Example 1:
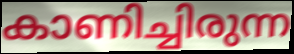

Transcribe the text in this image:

കാണിച്ചിരുന്ന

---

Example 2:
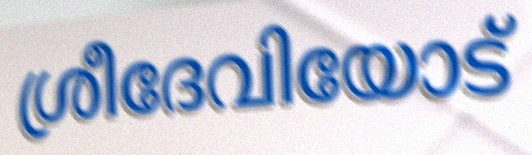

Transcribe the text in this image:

ശ്രീദേവിയോട്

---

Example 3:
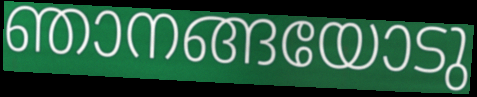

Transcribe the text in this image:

ഞാനങ്ങയോടു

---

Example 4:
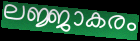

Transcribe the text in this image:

ലജ്ജാകരം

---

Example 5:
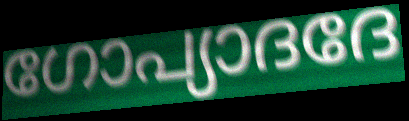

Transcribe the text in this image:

ഗോപ്യാദദേ